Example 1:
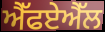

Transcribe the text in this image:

ਐੱਫਏਐੱਲ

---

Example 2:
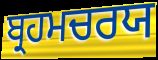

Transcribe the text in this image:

ਬ੍ਰਹਮਚਰਯ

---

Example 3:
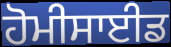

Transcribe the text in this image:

ਹੋਮੀਸਾਈਡ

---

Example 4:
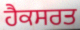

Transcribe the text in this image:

ਹੈਕਸਰਤ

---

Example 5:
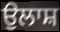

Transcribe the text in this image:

ਉਲਾਸ਼